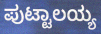
ಪುಟ್ಟಾಲಯ್ಯ